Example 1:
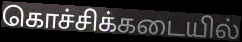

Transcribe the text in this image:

கொச்சிக்கடையில்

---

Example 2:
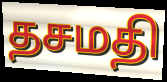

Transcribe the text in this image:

தசமதி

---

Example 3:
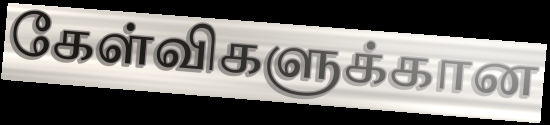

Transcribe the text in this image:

கேள்விகளுக்கான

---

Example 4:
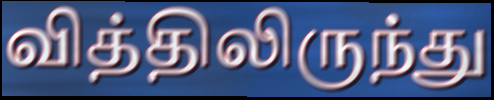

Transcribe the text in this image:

வித்திலிருந்து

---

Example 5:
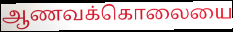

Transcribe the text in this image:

ஆணவக்கொலையை